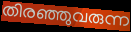
തിരഞ്ഞുവരുന്ന